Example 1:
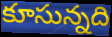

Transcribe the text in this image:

కూసున్నది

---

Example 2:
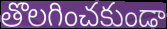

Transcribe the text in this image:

తొలగించకుండా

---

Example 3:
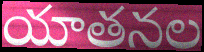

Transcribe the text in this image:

యాతనల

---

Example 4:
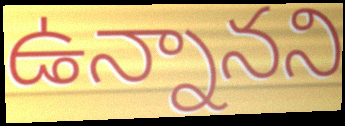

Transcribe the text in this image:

ఉన్నానని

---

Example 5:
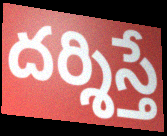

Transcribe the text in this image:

దర్శిస్తే